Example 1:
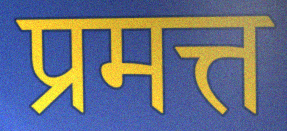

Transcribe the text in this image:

प्रमत्त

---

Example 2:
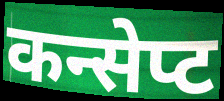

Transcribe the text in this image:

कन्सेप्ट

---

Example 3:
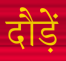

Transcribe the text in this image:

दौड़ें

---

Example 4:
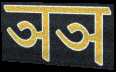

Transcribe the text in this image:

ञञ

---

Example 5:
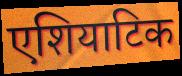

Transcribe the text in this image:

एशियाटिक